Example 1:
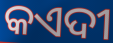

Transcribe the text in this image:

କଏଦୀ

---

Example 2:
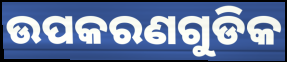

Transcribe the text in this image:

ଉପକରଣଗୁଡିକ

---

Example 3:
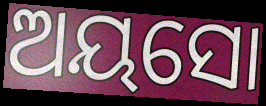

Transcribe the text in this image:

ଅୟସୋ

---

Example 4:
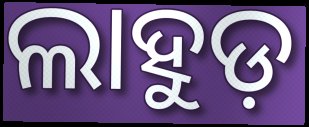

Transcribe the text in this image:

ଲାହୁଡ଼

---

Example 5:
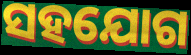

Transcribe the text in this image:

ସହଯୋଗ